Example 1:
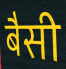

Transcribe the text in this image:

बैसी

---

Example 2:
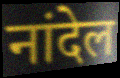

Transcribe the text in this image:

नांदेल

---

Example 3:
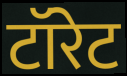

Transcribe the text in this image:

टॉरेट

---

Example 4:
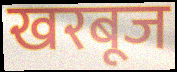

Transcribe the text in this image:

खरबूज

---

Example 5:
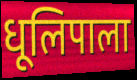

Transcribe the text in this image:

धूलिपाला